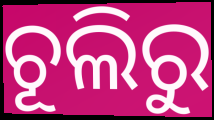
ଚୂଲିରୁ